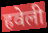
हवेली